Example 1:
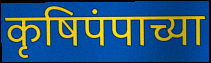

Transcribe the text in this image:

कृषिपंपाच्या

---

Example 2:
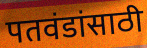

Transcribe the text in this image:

पतवंडांसाठी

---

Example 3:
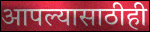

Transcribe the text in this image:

आपल्यासाठीही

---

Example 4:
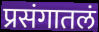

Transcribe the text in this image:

प्रसंगातलं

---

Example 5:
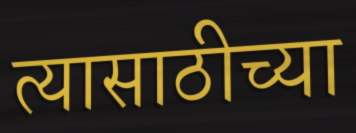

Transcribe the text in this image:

त्यासाठीच्या